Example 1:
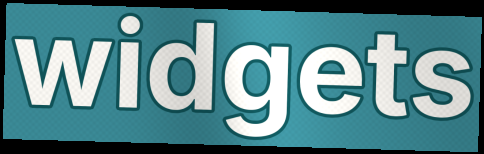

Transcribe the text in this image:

widgets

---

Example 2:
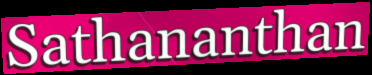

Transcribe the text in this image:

Sathananthan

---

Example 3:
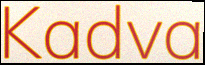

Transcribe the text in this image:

Kadva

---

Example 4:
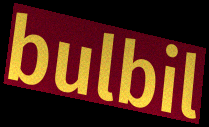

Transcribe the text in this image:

bulbil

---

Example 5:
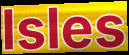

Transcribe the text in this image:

Isles